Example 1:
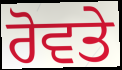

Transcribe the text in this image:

ਰੋਵਤੇ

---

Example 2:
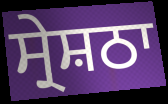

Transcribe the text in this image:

ਸ੍ਰੇਸ਼ਠਾ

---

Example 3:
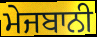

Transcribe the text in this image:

ਮੇਜਬਾਨੀ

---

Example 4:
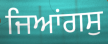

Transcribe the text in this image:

ਜਿਆਂਗਸੁ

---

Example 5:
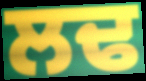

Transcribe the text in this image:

ਲਢ